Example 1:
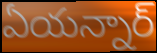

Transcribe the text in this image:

ఏయన్నార్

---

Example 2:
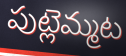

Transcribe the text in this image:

పుట్లెమ్మట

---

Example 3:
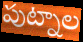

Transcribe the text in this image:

పుట్నాల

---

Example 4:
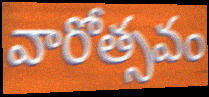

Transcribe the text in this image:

వారోత్సవం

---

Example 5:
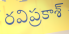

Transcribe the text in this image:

రవిప్రకాశ్